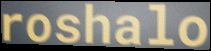
roshalo